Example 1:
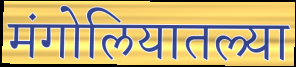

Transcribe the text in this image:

मंगोलियातल्या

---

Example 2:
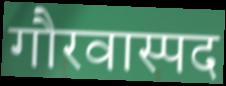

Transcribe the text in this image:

गौरवास्पद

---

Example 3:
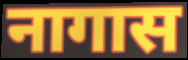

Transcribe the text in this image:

नागास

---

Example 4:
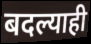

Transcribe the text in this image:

बदल्याही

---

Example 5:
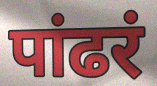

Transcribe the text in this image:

पांढरं